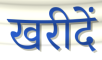
खरीदें